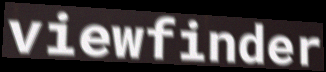
viewfinder